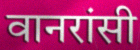
वानरांसी